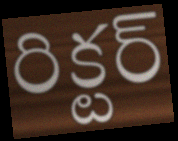
రిక్టర్